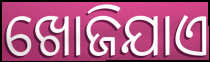
ଖୋଜିଯାଏ